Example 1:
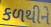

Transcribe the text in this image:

કળથીને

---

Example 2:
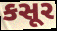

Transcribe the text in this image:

કસૂર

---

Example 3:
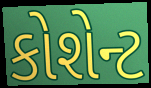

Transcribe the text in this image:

કોશેન્ટ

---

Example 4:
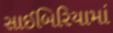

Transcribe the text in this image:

સાઈબિરિયામાં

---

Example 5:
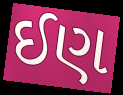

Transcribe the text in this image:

ઈણ